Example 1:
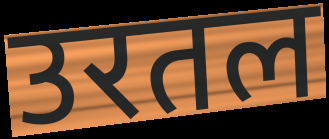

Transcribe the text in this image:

उरतल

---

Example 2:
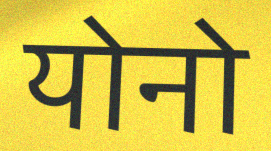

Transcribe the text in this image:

योनो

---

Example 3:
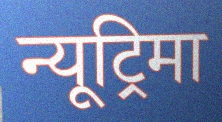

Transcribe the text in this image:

न्यूट्रिमा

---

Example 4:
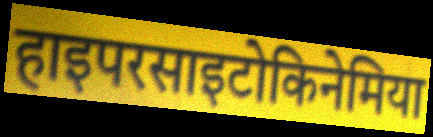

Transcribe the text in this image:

हाइपरसाइटोकिनेमिया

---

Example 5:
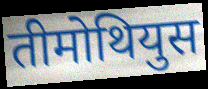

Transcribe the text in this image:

तीमोथियुस